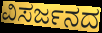
ವಿಸರ್ಜನದ